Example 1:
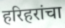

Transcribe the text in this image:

हरिहरांचा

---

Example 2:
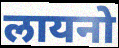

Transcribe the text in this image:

लायनो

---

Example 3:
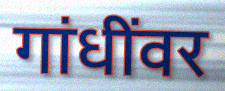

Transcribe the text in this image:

गांधींवर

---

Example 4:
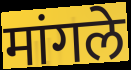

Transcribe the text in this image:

मांगले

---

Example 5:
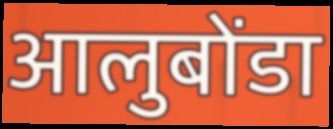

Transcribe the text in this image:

आलुबोंडा